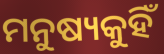
ମନୁଷ୍ୟକୁହିଁ